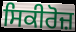
ਸਿਕੀਰੋਜ਼